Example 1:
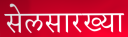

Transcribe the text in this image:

सेलसारख्या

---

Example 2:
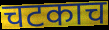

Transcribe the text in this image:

चटकाच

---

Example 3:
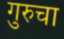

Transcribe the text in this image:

गुरुचा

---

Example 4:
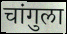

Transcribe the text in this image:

चांगुला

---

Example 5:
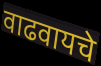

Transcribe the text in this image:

वाढवायचे